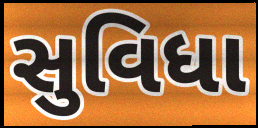
સુવિધા